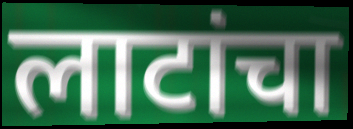
लाटांचा